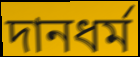
দানধর্ম